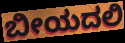
ಬೀಯದಲಿ